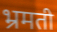
भ्रमती